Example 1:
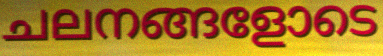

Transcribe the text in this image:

ചലനങ്ങളോടെ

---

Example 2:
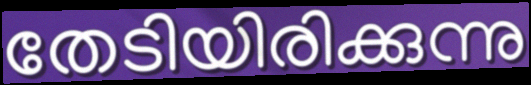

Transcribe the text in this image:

തേടിയിരിക്കുന്നു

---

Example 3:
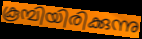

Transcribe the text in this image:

കൂമ്പിയിരിക്കുന്നു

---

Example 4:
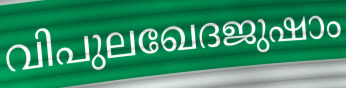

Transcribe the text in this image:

വിപുലഖേദജുഷാം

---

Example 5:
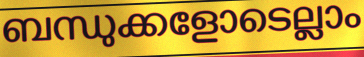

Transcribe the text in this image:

ബന്ധുക്കളോടെല്ലാം